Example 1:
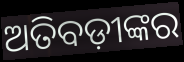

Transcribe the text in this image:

ଅତିବଡ଼ୀଙ୍କର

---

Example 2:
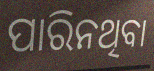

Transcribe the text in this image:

ପାରିନଥିବା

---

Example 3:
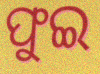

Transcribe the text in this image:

ଫୁଇ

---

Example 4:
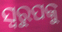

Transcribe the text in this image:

ସ୍ଵରୁପକୁ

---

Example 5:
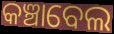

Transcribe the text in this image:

କଞ୍ଚାବେଲ